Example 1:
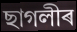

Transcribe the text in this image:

ছাগলীৰ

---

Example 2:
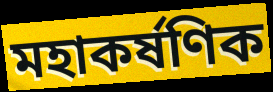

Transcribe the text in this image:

মহাকৰ্ষণিক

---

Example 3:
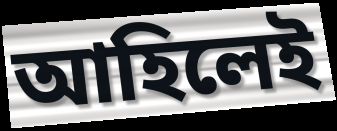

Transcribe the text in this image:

আহিলেই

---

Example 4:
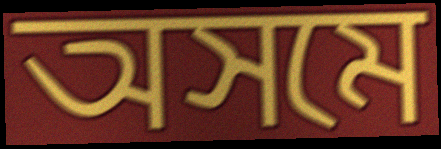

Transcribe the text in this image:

অসমে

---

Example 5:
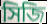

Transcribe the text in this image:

সিজি